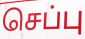
செப்பு